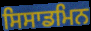
ਸਿਸਾਡਮਿਨ